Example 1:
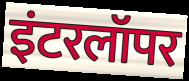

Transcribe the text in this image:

इंटरलॉपर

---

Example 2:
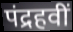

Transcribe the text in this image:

पंद्रहवीं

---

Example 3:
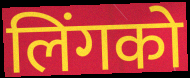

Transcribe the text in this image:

लिंगको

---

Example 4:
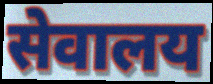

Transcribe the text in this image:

सेवालय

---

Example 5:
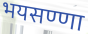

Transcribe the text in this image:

भयसण्णा